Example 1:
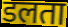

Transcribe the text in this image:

डलता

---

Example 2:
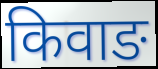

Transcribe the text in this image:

किवाङ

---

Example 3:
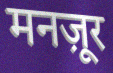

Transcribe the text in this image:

मनज़ूर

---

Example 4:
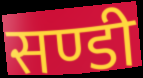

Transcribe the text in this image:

सण्डी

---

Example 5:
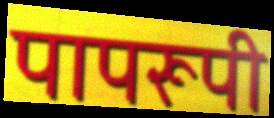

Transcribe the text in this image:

पापरूपी